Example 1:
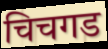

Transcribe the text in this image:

चिचगड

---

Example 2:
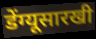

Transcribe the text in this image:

डेंग्यूसारखी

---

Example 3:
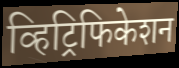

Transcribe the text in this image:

व्हिट्रिफिकेशन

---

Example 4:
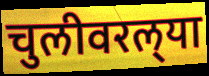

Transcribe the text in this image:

चुलीवरल्या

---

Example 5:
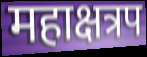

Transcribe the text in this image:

महाक्षत्रप